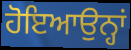
ਹੋਇਆਉਨ੍ਹਾਂ